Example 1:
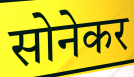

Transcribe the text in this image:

सोनेकर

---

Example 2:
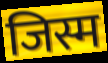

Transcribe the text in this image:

जिस्म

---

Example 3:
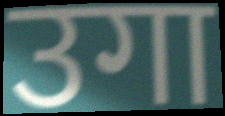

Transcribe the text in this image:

उगा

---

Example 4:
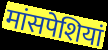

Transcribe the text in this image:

मांसपेशियां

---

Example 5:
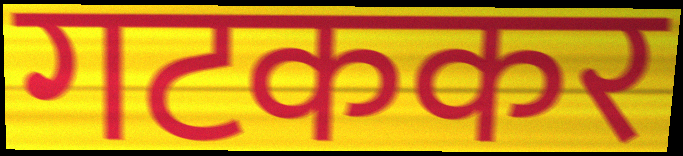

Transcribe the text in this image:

गटककर